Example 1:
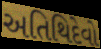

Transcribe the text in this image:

અતિથિદેવો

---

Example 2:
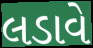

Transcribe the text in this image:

લડાવે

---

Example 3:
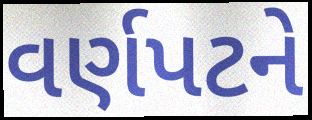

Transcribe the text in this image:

વર્ણપટને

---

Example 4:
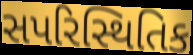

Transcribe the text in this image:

સપરિસ્થિતિક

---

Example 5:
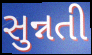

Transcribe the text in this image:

સુન્નતી